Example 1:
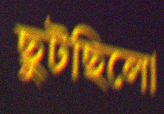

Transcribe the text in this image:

ছুটছিলো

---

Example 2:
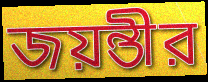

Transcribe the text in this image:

জয়ন্তীর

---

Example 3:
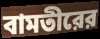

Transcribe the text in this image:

বামতীরের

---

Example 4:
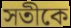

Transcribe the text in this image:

সতীকে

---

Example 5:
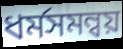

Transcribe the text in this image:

ধর্মসমন্বয়